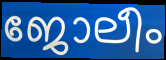
ജോലീം